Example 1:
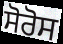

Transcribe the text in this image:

ਸੋਰੋਸ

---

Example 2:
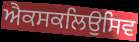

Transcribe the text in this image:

ਐਕਸਕਲਿਉਸਿਵ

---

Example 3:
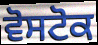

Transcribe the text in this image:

ਵੋਸਟੋਕ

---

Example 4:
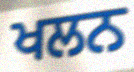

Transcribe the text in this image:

ਖਲਨ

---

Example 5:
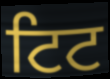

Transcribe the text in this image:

ਟਿਟ